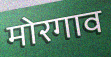
मोरगाव